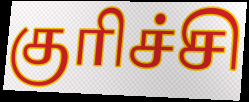
குரிச்சி